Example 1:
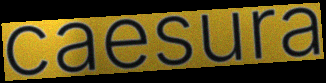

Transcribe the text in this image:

caesura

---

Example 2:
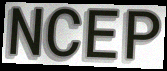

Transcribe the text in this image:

NCEP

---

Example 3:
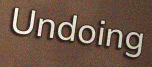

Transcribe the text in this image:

Undoing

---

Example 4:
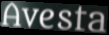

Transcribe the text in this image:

Avesta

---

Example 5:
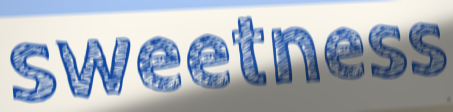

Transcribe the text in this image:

sweetness